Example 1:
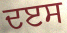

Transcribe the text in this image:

ਦੲਸ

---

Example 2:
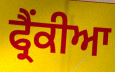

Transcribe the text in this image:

ਫ੍ਰੈਂਕੀਆ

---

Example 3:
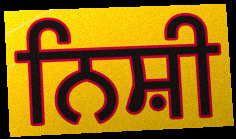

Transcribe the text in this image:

ਨਿਸ਼ੀ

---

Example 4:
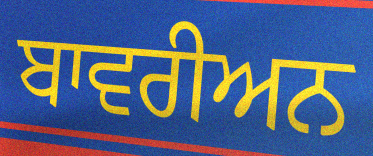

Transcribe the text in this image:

ਬਾਵਰੀਅਨ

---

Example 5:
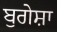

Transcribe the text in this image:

ਬੁਗੇਸ਼ਾ